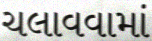
ચલાવવામાં